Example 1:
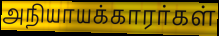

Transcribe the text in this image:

அநியாயக்காரர்கள்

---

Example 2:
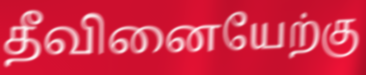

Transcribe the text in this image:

தீவினையேற்கு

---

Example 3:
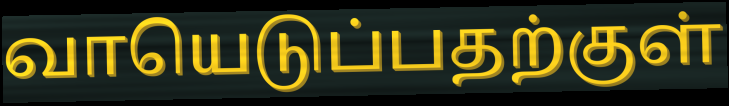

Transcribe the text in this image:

வாயெடுப்பதற்குள்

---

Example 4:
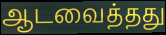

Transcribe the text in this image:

ஆடவைத்தது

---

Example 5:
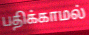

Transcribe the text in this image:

பதிக்காமல்